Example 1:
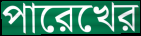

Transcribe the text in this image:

পারেখের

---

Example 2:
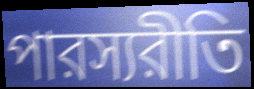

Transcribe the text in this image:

পারস্যরীতি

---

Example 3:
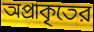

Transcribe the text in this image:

অপ্রাকৃতের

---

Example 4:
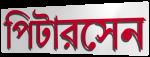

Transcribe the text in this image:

পিটারসেন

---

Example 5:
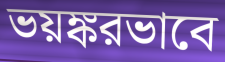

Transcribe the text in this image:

ভয়ঙ্করভাবে